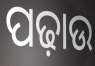
ପଢ଼ାଉ